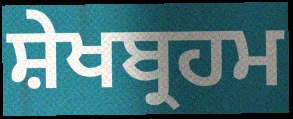
ਸ਼ੇਖਬ੍ਰਹਮ